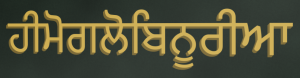
ਹੀਮੋਗਲੋਬਿਨੂਰੀਆ